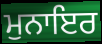
ਮੁਨਾਇਰ